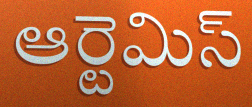
ఆర్టెమిస్